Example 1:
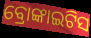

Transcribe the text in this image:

ବ୍ରୋଙ୍କାଇଟିସ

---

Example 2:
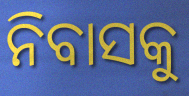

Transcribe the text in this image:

ନିବାସକୁ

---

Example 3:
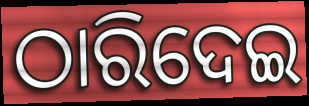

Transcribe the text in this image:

ଠାରିଦେଇ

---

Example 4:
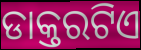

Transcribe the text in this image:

ଡାକ୍ତରଟିଏ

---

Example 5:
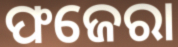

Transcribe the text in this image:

ଫଜେରା